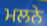
ਮਲਨੇ